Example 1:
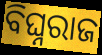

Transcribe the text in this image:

ବିଘ୍ନରାଜ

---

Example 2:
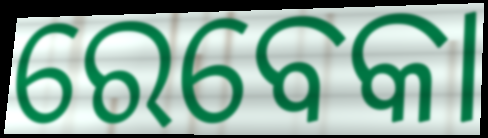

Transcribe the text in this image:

ରେବେକା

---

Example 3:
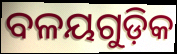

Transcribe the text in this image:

ବଳୟଗୁଡ଼ିକ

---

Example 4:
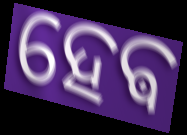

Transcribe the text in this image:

ହେଵ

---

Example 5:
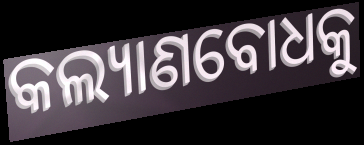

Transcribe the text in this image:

କଲ୍ୟାଣବୋଧକୁ